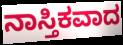
ನಾಸ್ತಿಕವಾದ